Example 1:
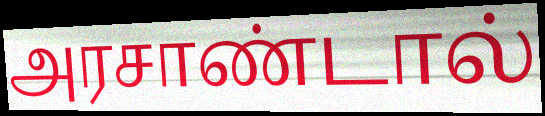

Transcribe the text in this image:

அரசாண்டால்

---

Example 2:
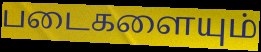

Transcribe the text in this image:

படைகளையும்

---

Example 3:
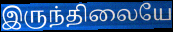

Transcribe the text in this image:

இருந்திலையே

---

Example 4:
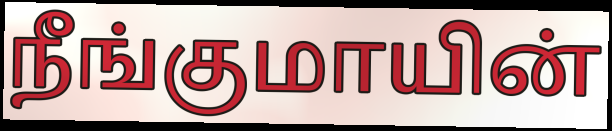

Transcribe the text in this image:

நீங்குமாயின்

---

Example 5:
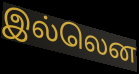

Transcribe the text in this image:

இல்லென